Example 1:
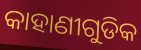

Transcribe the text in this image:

କାହାଣୀଗୁଡିକ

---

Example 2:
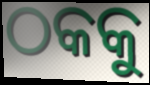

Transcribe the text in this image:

ଠକକୁ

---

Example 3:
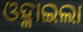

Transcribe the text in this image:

ଓହ୍ଳାଇଲା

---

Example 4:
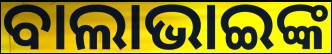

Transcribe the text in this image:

ବାଲାଭାଇଙ୍କ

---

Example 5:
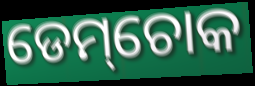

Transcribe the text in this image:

ଡେମ୍‌ଚୋକ